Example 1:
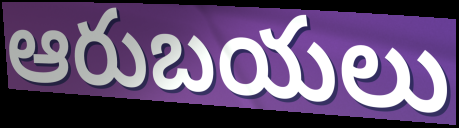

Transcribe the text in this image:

ఆరుబయలు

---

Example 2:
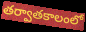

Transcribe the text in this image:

తర్వాతకాలంలో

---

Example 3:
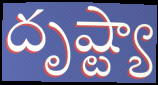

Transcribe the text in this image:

దృష్ట్యా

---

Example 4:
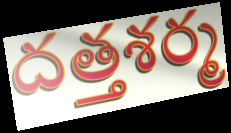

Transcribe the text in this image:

దత్తశర్మ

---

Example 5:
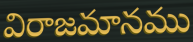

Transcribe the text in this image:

విరాజమానము